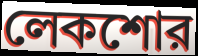
লেকশোর